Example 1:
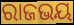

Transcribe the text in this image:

ରାଜଭୟ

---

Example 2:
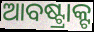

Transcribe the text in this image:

ଆବଷ୍ଟ୍ରାକ୍ଟ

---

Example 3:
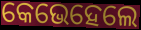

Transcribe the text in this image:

କେଭେହେଲେ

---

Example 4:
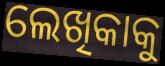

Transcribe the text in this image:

ଲେଖିକାକୁ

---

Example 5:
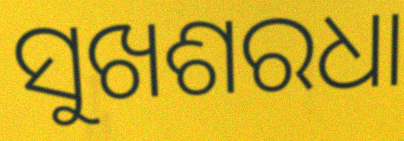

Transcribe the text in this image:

ସୁଖଶରଧା